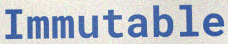
Immutable